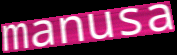
manusa